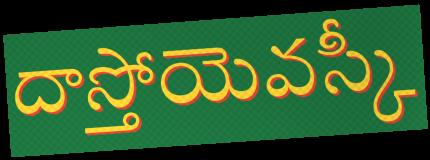
దాస్తోయెవస్కీ